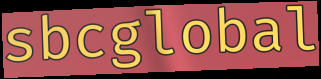
sbcglobal